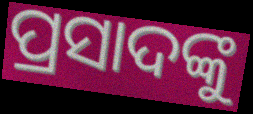
ପ୍ରସାଦଙ୍କୁ